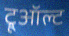
ट्रूऑल्ट